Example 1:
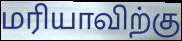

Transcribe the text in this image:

மரியாவிற்கு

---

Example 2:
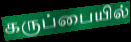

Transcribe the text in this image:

கருப்பையில்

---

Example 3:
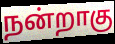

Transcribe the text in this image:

நன்றாகு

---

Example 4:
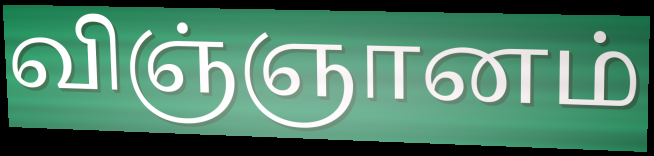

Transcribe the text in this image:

விஞ்ஞானம்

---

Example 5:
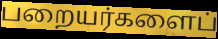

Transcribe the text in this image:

பறையர்களைப்